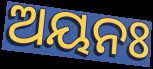
ଅୟନଃ